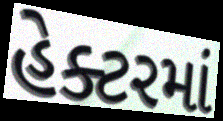
હેક્ટરમાં